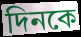
দিনকে